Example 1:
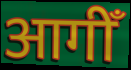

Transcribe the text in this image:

आगीँ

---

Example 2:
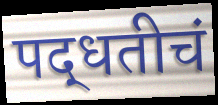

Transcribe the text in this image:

पद्धतीचं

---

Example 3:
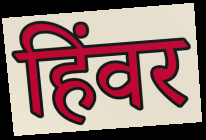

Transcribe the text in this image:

हिंवर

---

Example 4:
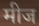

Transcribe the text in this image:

मीज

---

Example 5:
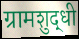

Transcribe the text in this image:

ग्रामशुद्धी